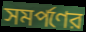
সমর্পণের